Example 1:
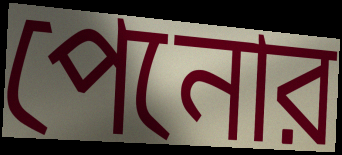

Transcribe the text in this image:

পেনোর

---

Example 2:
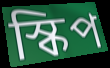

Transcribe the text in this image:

স্কিপ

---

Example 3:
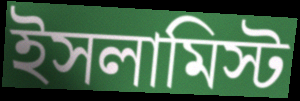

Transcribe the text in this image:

ইসলামিস্ট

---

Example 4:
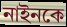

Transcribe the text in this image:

নাইনকে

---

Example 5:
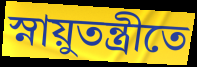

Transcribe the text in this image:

স্নায়ুতন্ত্রীতে